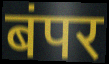
बंपर